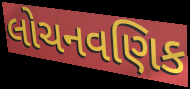
લોચનવણિક